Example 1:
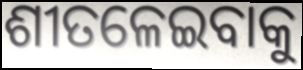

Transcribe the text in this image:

ଶୀତଳେଇବାକୁ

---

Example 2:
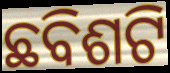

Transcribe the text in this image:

ଛବିଶଟି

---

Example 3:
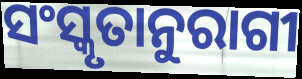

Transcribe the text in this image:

ସଂସ୍କୃତାନୁରାଗୀ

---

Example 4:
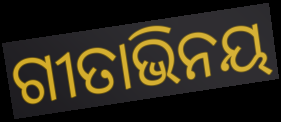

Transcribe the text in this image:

ଗୀତାଭିନୟ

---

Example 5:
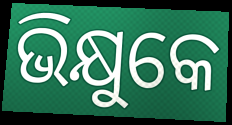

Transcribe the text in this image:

ଭିକ୍ଷୁକେ